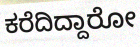
ಕರೆದಿದ್ದಾರೋ